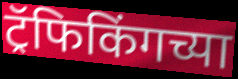
ट्रॅफिकिंगच्या